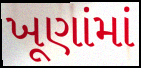
ખૂણાંમાં